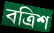
বত্রিশ